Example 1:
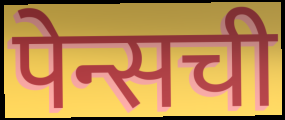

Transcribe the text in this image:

पेन्सची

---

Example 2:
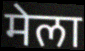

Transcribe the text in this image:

मेला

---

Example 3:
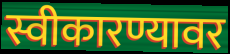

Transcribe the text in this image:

स्वीकारण्यावर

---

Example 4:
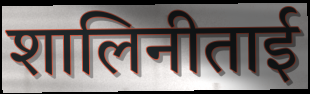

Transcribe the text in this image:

शालिनीताई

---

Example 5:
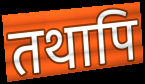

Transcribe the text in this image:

तथापि